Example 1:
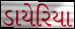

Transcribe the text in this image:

ડાયેરિયા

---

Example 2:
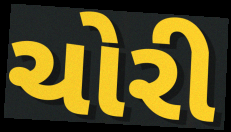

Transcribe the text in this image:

ચોરી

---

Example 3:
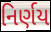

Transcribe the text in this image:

નિર્ણય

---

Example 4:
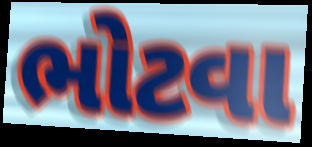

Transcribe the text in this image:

ભોટવા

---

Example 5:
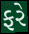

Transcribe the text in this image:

ફરે